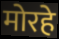
मोरहे